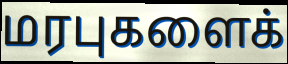
மரபுகளைக்